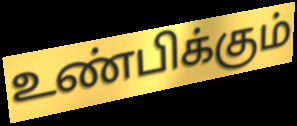
உண்பிக்கும்